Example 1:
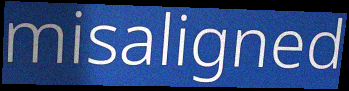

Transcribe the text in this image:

misaligned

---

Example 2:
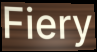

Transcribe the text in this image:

Fiery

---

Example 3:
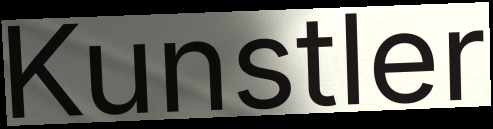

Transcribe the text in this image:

Kunstler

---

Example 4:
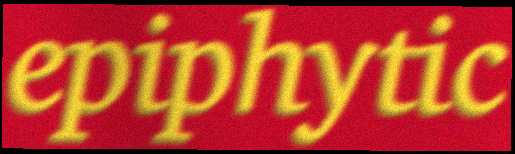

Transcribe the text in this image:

epiphytic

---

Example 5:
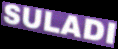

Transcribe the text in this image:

SULADI